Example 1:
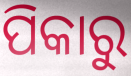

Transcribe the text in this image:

ପିକାରୁ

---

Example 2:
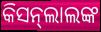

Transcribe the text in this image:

କିସନ୍‌ଲାଲଙ୍କ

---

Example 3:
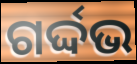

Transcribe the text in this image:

ଗର୍ଦ୍ଦଭ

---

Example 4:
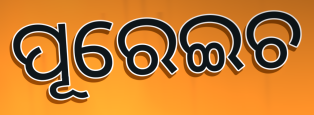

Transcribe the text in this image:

ପୂରେଇଚ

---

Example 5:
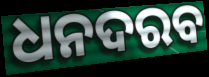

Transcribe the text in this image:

ଧନଦରବ